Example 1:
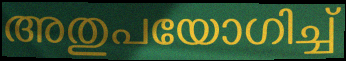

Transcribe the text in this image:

അതുപയോഗിച്ച്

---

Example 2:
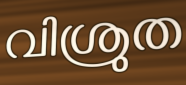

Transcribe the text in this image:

വിശ്രുത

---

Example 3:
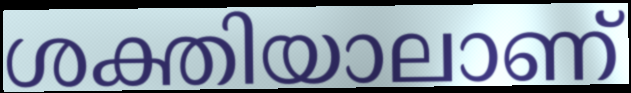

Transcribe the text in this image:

ശക്തിയാലാണ്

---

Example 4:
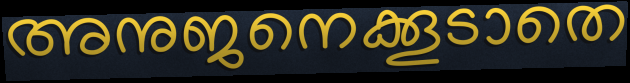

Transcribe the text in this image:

അനുജനെക്കൂടാതെ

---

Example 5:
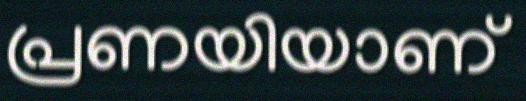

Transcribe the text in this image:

പ്രണയിയാണ്